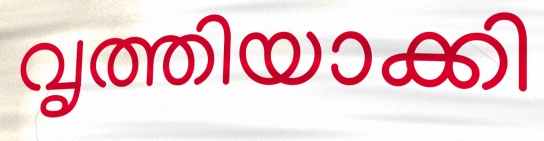
വൃത്തിയാക്കി